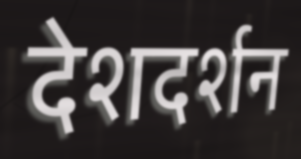
देशदर्शन